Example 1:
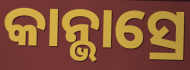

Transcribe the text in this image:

କାନ୍ଭାସ୍ରେ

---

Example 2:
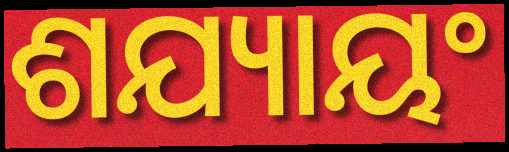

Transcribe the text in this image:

ଶଯ୍ୟାୟଂ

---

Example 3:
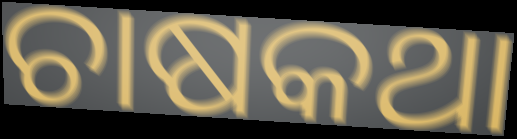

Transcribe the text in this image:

ଚାଷକଥା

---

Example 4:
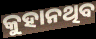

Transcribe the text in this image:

କୁହାନଥିବ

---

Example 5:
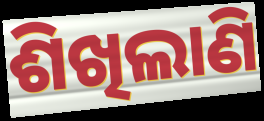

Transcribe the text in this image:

ଶିଖିଲାଣି